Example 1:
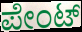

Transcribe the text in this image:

ಪೇಂಟ್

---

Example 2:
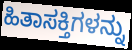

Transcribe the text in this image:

ಹಿತಾಸಕ್ತಿಗಳನ್ನು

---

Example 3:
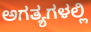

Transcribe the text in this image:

ಅಗತ್ಯಗಳಲ್ಲಿ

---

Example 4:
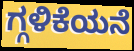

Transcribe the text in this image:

ಗ್ಗಳಿಕೆಯನೆ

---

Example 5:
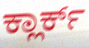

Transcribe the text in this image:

ಕ್ಲಾರ್ಕ್